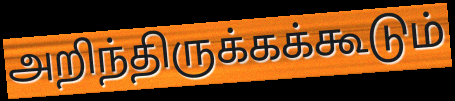
அறிந்திருக்கக்கூடும்